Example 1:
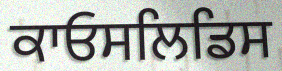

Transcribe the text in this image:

ਕਾਓਸਲਿਡਿਸ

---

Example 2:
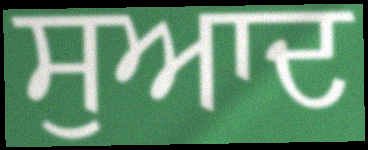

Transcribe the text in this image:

ਸੁਆਦ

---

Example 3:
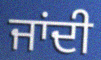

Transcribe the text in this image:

ਜਾਂਦੀ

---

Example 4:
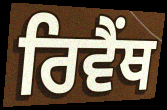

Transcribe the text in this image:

ਰਿਵੈਂਥ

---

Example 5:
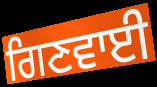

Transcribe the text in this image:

ਗਿਣਵਾਈ